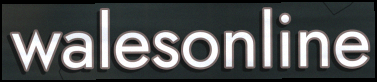
walesonline